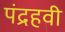
पंद्रहवी